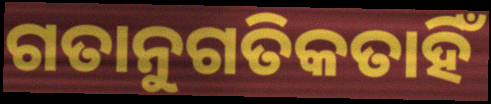
ଗତାନୁଗତିକତାହିଁ